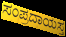
ಸಂಪ್ರದಾಯಸ್ತ